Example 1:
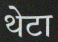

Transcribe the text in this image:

थेटा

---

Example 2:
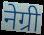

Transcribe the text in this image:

नेग्री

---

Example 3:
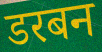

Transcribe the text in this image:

डरबन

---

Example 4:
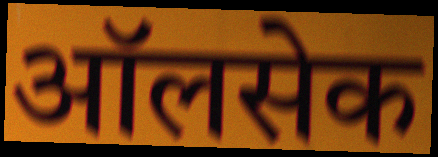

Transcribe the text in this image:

ऑलसेक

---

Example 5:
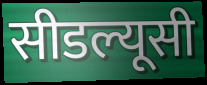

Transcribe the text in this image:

सीडल्यूसी